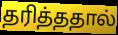
தரித்ததால்